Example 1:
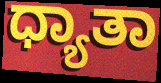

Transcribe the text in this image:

ಧ್ಯಾತಾ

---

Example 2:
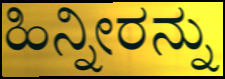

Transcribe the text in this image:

ಹಿನ್ನೀರನ್ನು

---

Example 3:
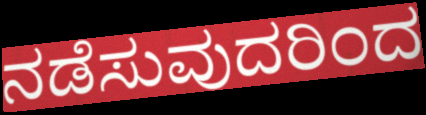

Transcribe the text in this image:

ನಡೆಸುವುದರಿಂದ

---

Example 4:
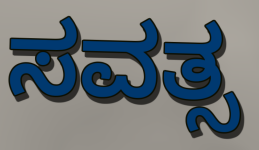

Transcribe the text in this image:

ಸವತ್ಸ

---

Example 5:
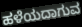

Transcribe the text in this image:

ಹಳೆಯದಾಗುವ